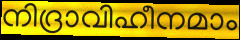
നിദ്രാവിഹീനമാം